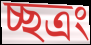
চ্ছত্রং